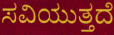
ಸವಿಯುತ್ತದೆ